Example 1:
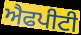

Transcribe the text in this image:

ਐਫਪੀਟੀ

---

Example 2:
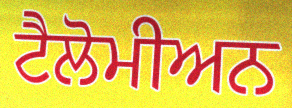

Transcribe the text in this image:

ਟੈਲੋਮੀਅਨ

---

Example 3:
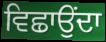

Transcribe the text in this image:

ਵਿਛਾਉਂਦਾ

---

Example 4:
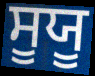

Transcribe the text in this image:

ਸੂਯੂ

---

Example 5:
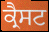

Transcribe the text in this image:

ਕ੍ਰੈਸਟ